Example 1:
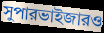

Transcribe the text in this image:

সুপারভাইজারও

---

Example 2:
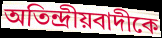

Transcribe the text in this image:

অতিন্দ্রীয়বাদীকে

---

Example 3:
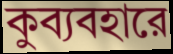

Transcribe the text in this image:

কুব্যবহারে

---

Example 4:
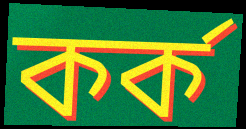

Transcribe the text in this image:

কর্ক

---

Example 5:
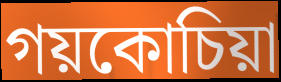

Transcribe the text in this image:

গয়কোচিয়া